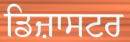
ਡਿਜ਼ਾਸਟਰ